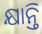
କ୍ଷାନ୍ତି